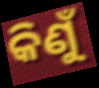
କିଣୁଁ